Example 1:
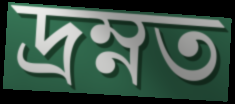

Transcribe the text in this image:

দ্রম্নত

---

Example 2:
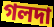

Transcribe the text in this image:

গলদা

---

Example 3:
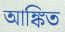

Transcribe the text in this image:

আঙ্কিত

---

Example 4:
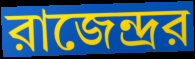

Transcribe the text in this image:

রাজেন্দ্রর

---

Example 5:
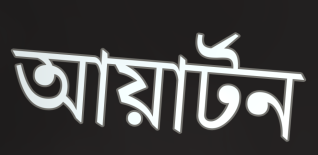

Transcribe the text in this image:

আয়ার্টন